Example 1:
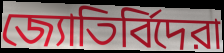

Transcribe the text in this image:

জ্যোতির্বিদেরা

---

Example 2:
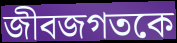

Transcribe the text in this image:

জীবজগতকে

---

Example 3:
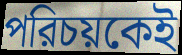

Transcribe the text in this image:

পরিচয়কেই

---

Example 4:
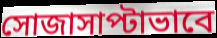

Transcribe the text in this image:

সোজাসাপ্টাভাবে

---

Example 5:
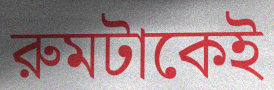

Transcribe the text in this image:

রুমটাকেই